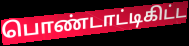
பொண்டாட்டிகிட்ட